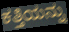
ಕತ್ತಿಯನ್ನು